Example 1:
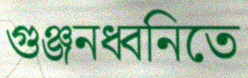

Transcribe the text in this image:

গুঞ্জনধ্বনিতে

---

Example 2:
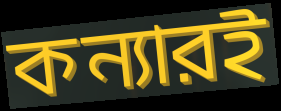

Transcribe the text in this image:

কন্যারই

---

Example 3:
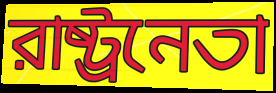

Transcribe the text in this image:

রাষ্ট্রনেতা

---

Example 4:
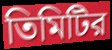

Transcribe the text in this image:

তিমিটির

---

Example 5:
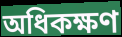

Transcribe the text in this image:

অধিকক্ষণ